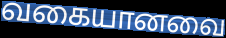
வகையானவை